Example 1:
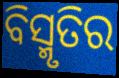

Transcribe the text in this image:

ବିସ୍ମୃତିର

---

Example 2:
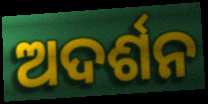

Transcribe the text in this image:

ଅଦର୍ଶନ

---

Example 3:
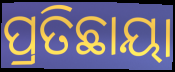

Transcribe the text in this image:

ପ୍ରତିଛାୟା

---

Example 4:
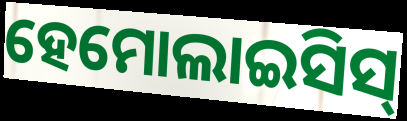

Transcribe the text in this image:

ହେମୋଲାଇସିସ୍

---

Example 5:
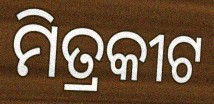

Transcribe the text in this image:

ମିତ୍ରକୀଟ